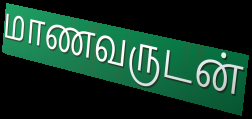
மாணவருடன்